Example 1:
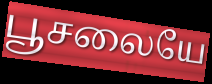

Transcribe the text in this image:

பூசலையே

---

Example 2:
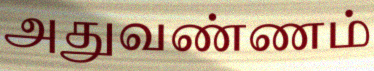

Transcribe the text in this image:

அதுவண்ணம்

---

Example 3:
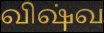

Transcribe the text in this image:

விஷ்வ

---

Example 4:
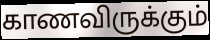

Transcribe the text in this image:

காணவிருக்கும்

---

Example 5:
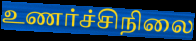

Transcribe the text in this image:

உணர்ச்சிநிலை